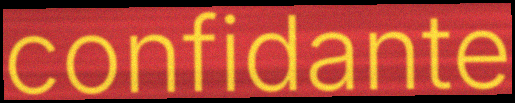
confidante